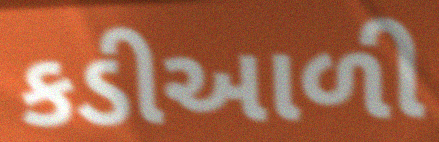
કડીઆળી